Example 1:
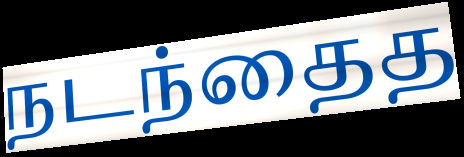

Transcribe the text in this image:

நடந்தைத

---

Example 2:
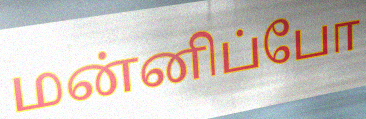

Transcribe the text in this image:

மன்னிப்போ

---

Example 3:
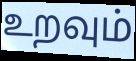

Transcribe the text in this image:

உறவும்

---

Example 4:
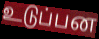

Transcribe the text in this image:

உடுப்பன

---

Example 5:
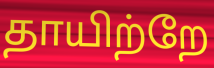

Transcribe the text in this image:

தாயிற்றே